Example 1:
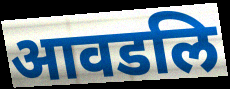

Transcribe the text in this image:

आवडलि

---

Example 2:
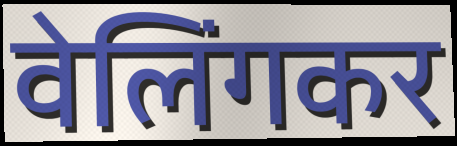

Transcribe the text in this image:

वेलिंगकर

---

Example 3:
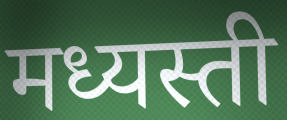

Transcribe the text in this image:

मध्यस्ती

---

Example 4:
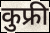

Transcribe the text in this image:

कुफ्री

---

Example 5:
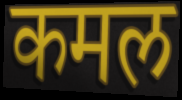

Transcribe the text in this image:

कमल